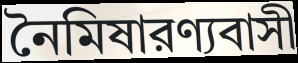
নৈমিষারণ্যবাসী